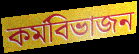
কর্মবিভাজন